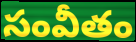
సంవీతం